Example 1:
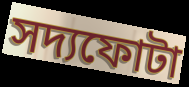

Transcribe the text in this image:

সদ্যফোটা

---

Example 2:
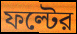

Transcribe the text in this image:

ফল্টের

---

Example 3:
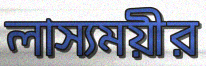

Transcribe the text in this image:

লাস্যময়ীর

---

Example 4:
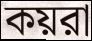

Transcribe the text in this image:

কয়রা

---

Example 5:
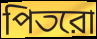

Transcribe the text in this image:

পিতরো